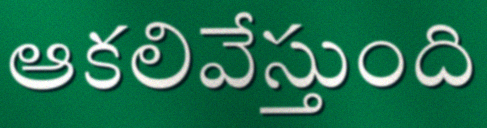
ఆకలివేస్తుంది